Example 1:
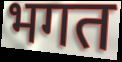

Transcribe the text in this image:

भगत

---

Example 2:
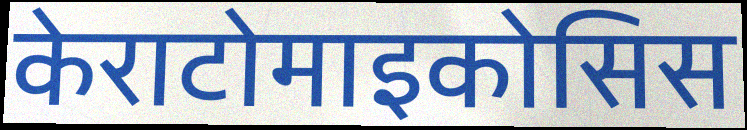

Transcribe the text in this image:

केराटोमाइकोसिस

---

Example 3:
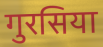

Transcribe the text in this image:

गुरसिया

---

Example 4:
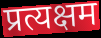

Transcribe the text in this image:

प्रत्यक्षम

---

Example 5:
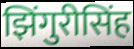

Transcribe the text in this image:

झिंगुरीसिंह